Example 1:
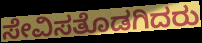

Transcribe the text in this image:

ಸೇವಿಸತೊಡಗಿದರು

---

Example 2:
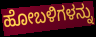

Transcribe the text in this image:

ಹೋಬಳಿಗಳನ್ನು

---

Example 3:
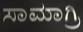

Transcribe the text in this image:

ಸಾಮಾಗ್ರಿ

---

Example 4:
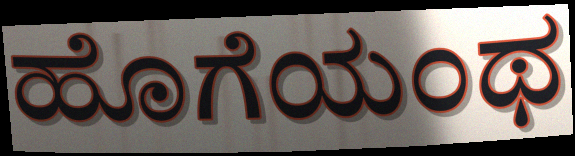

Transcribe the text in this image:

ಹೊಗೆಯಂಥ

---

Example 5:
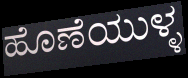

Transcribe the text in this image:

ಹೊಣೆಯುಳ್ಳ